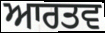
ਆਰਤਵ